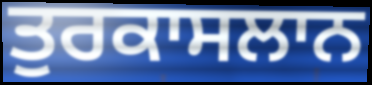
ਤੁਰਕਾਸਲਾਨ